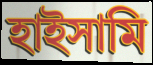
হাইসামি